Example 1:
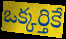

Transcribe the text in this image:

ఒక్కర్తికే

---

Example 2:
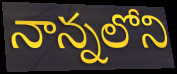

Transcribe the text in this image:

నాన్నలోని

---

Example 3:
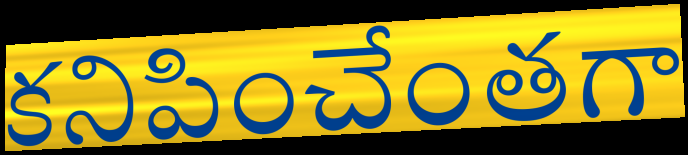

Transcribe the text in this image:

కనిపించేంతగా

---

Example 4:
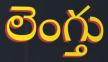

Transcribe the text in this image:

లెంగ్తు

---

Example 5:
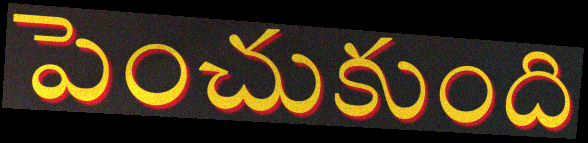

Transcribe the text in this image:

పెంచుకుంది